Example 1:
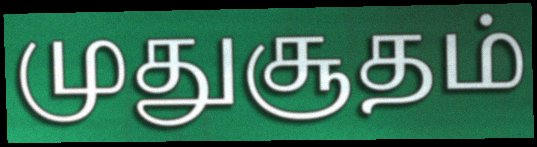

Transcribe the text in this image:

முதுசூதம்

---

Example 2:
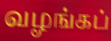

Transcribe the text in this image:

வழங்கப்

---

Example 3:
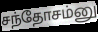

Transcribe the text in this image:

சந்தோசம்னு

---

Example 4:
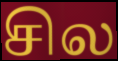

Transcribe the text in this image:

சில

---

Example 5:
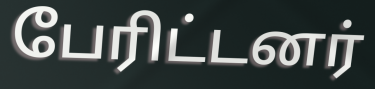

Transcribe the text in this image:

பேரிட்டனர்